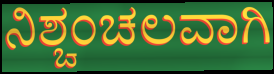
ನಿಶ್ಚಂಚಲವಾಗಿ